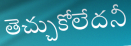
తెచ్చుకోలేదనీ